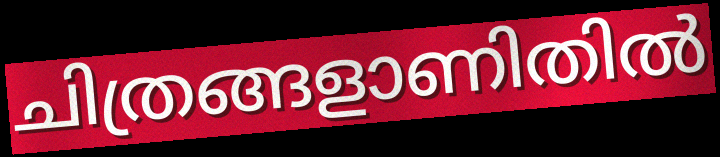
ചിത്രങ്ങളാണിതിൽ